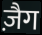
ज़ैग